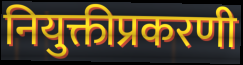
नियुक्तीप्रकरणी